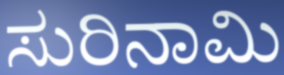
ಸುರಿನಾಮಿ